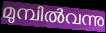
മുമ്പിൽവന്നു